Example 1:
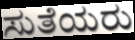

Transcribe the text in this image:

ಸುತೆಯರು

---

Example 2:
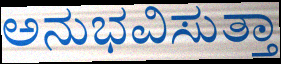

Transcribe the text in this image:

ಅನುಭವಿಸುತ್ತಾ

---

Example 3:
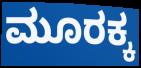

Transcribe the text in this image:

ಮೂರಕ್ಕ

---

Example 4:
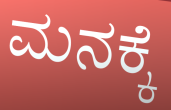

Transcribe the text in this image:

ಮನಕ್ಕೆ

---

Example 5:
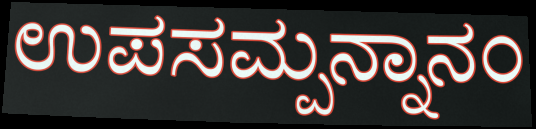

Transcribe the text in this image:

ಉಪಸಮ್ಪನ್ನಾನಂ